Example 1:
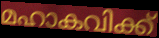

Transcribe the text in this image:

മഹാകവിക്ക്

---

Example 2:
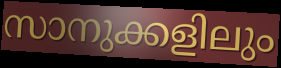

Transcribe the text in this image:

സാനുക്കളിലും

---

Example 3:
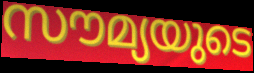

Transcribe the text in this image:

സൗമ്യയുടെ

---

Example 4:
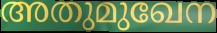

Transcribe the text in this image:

അതുമുഖേന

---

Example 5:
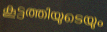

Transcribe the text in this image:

കൂട്ടത്തിയുടെയും